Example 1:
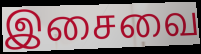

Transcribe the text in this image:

இசைவை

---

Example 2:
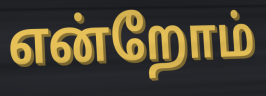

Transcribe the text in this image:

என்றோம்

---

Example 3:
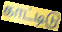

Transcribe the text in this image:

காட்டிடு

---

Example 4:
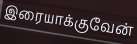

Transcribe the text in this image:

இரையாக்குவேன்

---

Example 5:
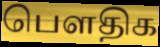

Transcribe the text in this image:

பௌதிக